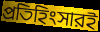
প্রতিহিংসারই